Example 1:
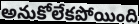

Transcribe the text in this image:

అనుకోలేకపోయింది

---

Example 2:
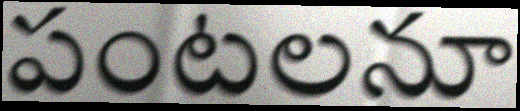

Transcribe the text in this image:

పంటలనూ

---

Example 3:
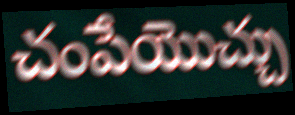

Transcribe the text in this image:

చంపేయొచ్చు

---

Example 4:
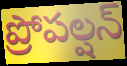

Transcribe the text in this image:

ప్రోపల్షన్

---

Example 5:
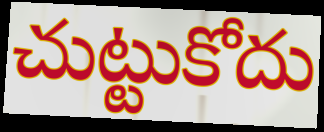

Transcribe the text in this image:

చుట్టుకోదు